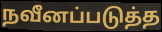
நவீனப்படுத்த